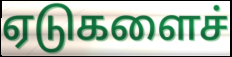
ஏடுகளைச்